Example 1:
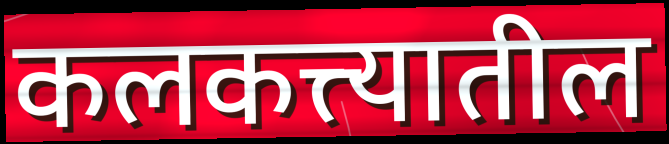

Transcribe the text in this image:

कलकत्त्यातील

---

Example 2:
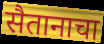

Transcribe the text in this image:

सैतानाचा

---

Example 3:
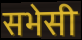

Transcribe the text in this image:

सभेसी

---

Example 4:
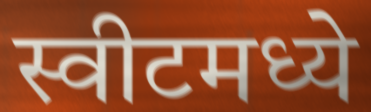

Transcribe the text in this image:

स्वीटमध्ये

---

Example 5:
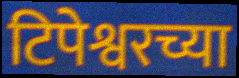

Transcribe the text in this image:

टिपेश्वरच्या